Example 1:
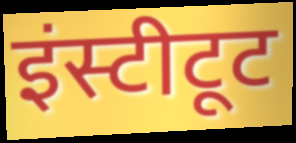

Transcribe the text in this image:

इंस्टीटूट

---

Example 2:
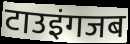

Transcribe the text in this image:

टाउइंगजब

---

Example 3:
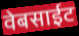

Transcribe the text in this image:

वेबसाईट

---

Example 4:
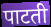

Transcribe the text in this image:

पाटती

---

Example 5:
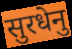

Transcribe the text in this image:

सुरधेनु